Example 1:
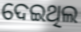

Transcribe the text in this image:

ଦେଇଥିଲ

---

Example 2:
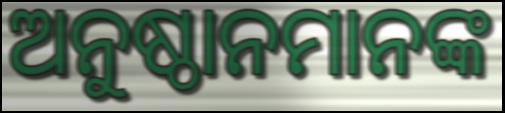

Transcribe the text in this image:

ଅନୁଷ୍ଠାନମାନଙ୍କ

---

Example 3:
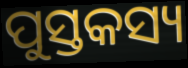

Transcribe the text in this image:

ପୁସ୍ତକସ୍ୟ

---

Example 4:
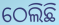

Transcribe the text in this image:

ଠେଲିଛି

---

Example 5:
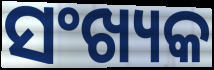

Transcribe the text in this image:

ସଂଖ୍ୟକ